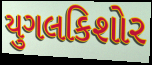
યુગલકિશોર